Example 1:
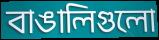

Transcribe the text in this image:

বাঙালিগুলো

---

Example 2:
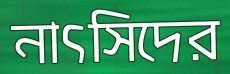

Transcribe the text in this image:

নাৎসিদের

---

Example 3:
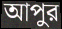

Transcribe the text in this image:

আপুর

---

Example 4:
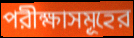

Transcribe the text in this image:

পরীক্ষাসমূহের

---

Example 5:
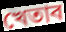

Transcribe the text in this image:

খেতাব